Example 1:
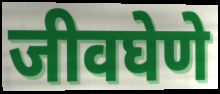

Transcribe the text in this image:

जीवघेणे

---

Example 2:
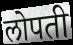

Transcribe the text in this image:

लोपती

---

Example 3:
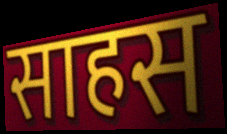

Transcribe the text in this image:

साहस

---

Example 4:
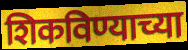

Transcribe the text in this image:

शिकविण्याच्या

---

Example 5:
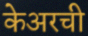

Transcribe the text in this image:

केअरची